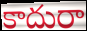
కాదురా